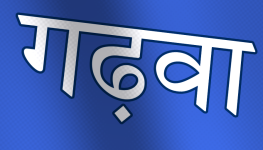
गढ़वा